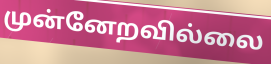
முன்னேறவில்லை